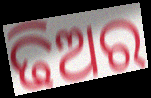
ଢିଅର